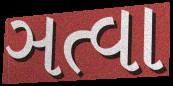
ઞત્વા